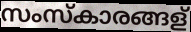
സംസ്കാരങ്ങള്